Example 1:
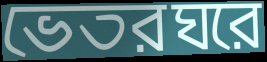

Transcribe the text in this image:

ভেতরঘরে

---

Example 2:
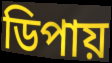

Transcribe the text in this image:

ডিপায়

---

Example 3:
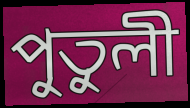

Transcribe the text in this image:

পুতুলী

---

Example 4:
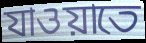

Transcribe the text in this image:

যাওয়াতে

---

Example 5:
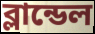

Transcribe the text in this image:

ব্লান্ডেল